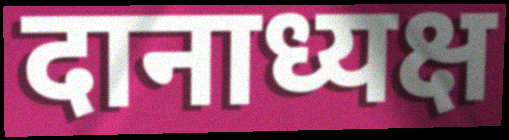
दानाध्यक्ष